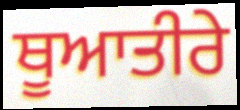
ਥੂਆਤੀਰੇ